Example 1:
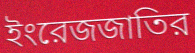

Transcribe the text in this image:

ইংরেজজাতির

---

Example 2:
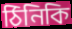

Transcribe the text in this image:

ঠিনিকি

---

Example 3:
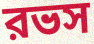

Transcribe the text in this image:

রভস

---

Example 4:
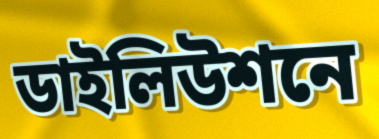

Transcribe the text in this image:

ডাইলিউশনে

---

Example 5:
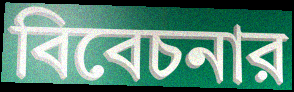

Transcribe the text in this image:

বিবেচনার